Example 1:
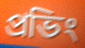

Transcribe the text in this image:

প্রভিং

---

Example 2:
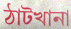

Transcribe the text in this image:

ঠাটখানা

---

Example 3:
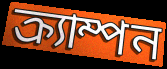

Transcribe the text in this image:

ক্র্যাম্পন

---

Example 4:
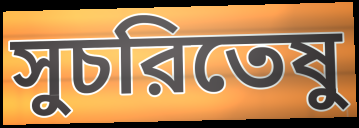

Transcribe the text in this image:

সুচরিতেষু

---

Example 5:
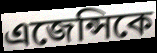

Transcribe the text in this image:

এজেন্সিকে